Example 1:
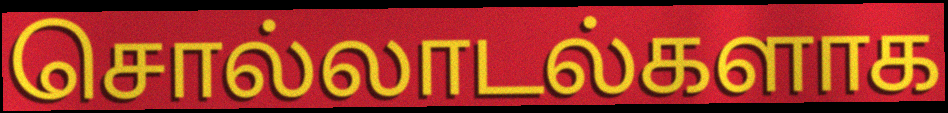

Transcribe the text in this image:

சொல்லாடல்களாக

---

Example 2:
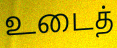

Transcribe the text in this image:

உடைத்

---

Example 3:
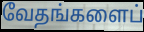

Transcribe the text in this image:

வேதங்களைப்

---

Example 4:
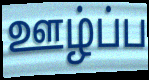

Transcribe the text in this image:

ஊழ்ப்ப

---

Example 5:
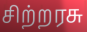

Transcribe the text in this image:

சிற்றரசு